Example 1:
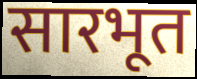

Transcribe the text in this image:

सारभूत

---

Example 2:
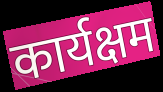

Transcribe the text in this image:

कार्यक्षम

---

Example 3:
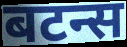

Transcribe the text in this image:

बटन्स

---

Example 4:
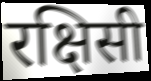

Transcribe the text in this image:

रक्षिसी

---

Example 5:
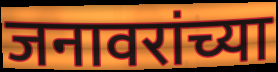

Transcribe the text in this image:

जनावरांच्या